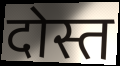
दोस्‍त